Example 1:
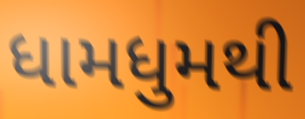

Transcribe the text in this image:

ધામધુમથી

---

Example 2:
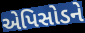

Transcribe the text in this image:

એપિસોડને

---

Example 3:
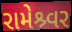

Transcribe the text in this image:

રામેશ્ર્વર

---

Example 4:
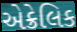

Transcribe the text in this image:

એક્રેલિક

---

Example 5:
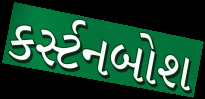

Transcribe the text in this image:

કર્સ્ટનબોશ